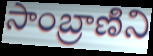
సాంబ్రాణిని